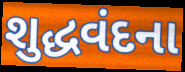
શુદ્ધવંદના